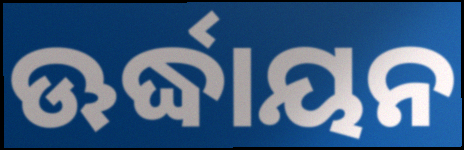
ଊର୍ଦ୍ଧାୟନ